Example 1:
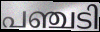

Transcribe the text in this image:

പഞ്ചടി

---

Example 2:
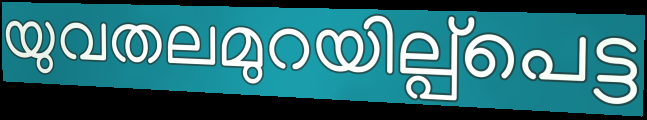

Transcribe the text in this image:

യുവതലമുറയില്പ്പെട്ട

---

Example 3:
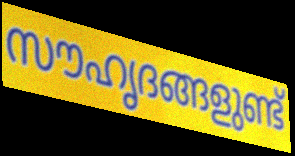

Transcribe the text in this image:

സൗഹൃദങ്ങളുണ്ട്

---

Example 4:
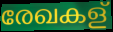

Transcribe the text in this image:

രേഖകള്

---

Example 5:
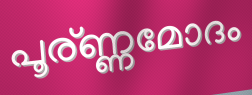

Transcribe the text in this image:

പൂര്ണ്ണമോദം